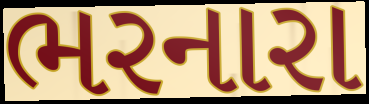
ભરનારા